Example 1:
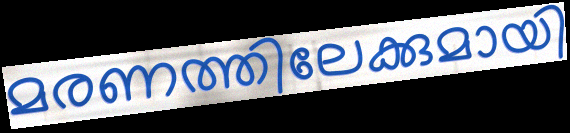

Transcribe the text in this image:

മരണത്തിലേക്കുമായി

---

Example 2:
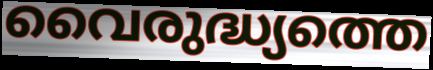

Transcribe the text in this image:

വൈരുദ്ധ്യത്തെ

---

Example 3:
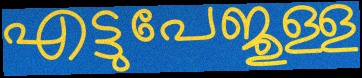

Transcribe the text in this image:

എട്ടുപേജുള്ള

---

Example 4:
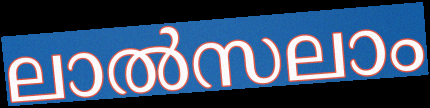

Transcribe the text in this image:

ലാൽസലാം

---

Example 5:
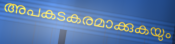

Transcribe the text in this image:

അപകടകരമാക്കുകയും